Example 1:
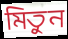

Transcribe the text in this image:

মিতুন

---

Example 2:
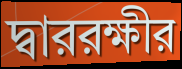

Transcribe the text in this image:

দ্বাররক্ষীর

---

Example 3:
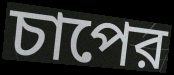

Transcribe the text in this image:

চাপের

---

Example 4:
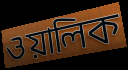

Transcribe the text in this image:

ওয়ালিক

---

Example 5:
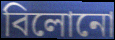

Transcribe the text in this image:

বিলোনো